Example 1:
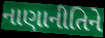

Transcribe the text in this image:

નાણાનીતિને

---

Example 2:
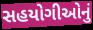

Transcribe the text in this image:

સહયોગીઓનું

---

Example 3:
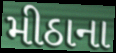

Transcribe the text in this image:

મીઠાના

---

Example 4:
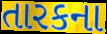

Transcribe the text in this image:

તારકના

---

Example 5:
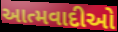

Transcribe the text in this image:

આત્મવાદીઓ